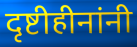
दृष्टीहीनांनी